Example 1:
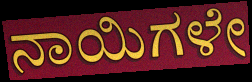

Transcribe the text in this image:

ನಾಯಿಗಳೇ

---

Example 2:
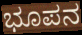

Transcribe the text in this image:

ಭೂಪನ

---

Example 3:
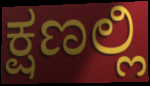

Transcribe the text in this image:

ಕ್ಷಣಲ್ಲಿ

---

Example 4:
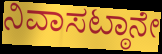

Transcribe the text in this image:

ನಿವಾಸಟ್ಠಾನೇ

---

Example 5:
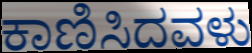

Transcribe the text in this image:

ಕಾಣಿಸಿದವಳು